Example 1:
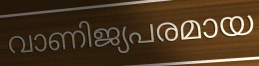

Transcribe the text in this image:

വാണിജ്യപരമായ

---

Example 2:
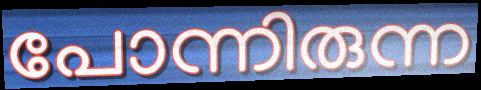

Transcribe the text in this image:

പോന്നിരുന്ന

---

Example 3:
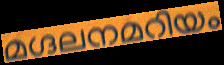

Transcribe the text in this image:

മഗ്ദലനമറിയം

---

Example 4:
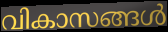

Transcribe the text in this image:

വികാസങ്ങൾ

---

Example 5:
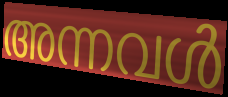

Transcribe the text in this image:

അന്നവൾ